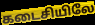
கடைசியிலே